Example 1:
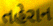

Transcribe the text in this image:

તહેરાન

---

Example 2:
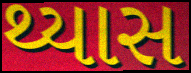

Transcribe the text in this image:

થ્યાસ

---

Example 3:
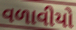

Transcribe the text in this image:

વળાવીયો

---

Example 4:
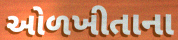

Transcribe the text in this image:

ઓળખીતાના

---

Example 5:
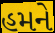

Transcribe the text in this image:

હમને